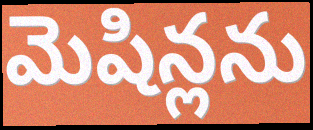
మెషిన్లను